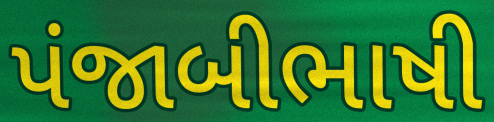
પંજાબીભાષી